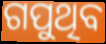
ଗପୁଥିବ